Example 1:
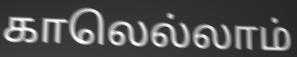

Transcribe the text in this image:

காலெல்லாம்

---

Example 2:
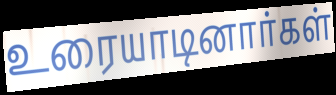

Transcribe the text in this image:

உரையாடினார்கள்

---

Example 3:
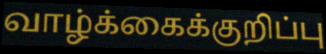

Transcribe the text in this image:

வாழ்க்கைக்குறிப்பு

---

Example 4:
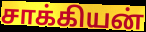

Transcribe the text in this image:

சாக்கியன்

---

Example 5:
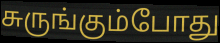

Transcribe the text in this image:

சுருங்கும்போது